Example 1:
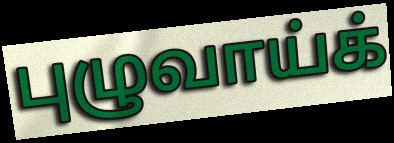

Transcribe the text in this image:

புழுவாய்க்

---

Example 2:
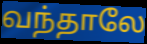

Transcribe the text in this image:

வந்தாலே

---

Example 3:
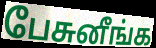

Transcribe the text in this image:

பேசுனீங்க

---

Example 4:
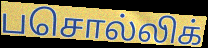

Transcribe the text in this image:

பசொல்லிக்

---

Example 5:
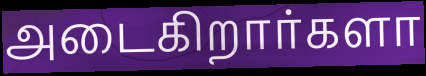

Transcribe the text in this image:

அடைகிறார்களா